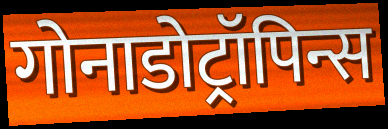
गोनाडोट्रॉपिन्स